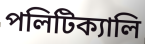
পলিটিক্যালি